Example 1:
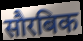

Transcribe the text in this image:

सौरबिक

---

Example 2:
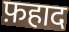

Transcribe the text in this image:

फ़हाद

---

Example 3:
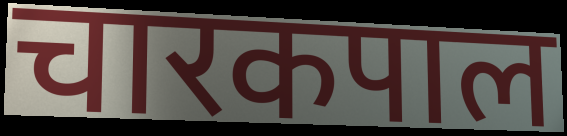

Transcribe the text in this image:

चारकपाल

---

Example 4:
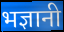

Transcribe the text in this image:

भज्ञानी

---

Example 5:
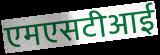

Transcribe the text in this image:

एमएसटीआई